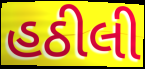
હઠીલી